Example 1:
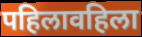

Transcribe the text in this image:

पहिलावहिला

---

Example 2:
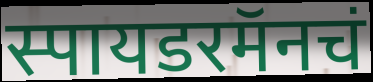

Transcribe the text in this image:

स्पायडरमॅनचं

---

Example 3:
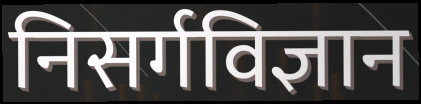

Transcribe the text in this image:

निसर्गविज्ञान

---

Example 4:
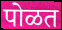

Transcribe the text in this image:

पोळत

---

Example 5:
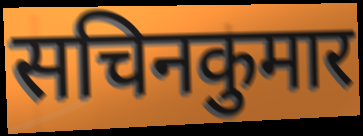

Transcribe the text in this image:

सचिनकुमार